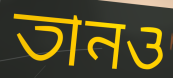
তানও